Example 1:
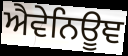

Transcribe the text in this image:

ਐਵੇਨਿਊਞ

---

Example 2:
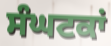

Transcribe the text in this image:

ਸੰਘਟਕਾਂ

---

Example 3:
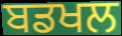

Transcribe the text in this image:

ਬਡਖਲ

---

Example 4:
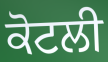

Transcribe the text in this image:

ਕੋਟਲੀ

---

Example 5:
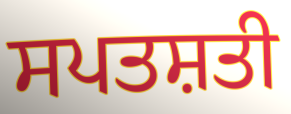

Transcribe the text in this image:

ਸਪਤਸ਼ਤੀ